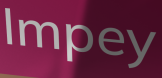
Impey